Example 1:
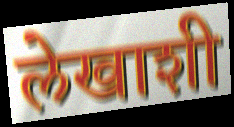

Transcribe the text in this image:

लेखाशी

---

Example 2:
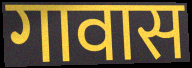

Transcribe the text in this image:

गावास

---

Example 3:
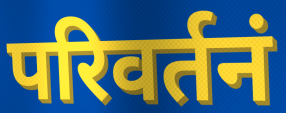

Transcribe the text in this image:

परिवर्तनं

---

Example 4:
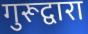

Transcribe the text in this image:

गुरूद्वारा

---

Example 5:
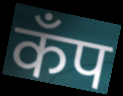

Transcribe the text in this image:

कॅंप